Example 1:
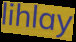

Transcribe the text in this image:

lihlay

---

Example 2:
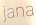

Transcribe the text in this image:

jana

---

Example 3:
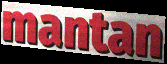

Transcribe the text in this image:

mantan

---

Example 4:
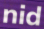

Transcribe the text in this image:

nid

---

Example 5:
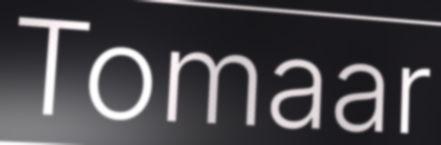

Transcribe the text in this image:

Tomaar